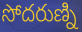
సోదరుణ్ని